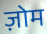
ज़ोम